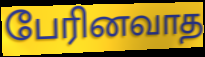
பேரினவாத